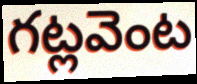
గట్లవెంట